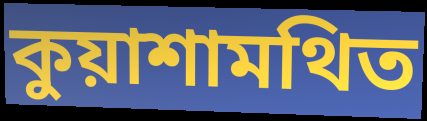
কুয়াশামথিত